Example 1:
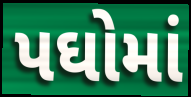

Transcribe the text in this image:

પઘોમાં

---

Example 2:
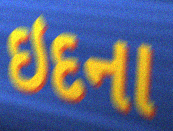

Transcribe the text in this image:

ઇદના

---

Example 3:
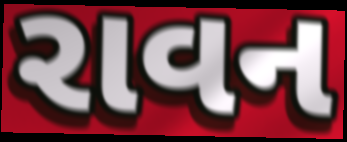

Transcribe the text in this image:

રાવન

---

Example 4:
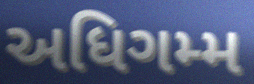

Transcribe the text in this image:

અધિગમ્મ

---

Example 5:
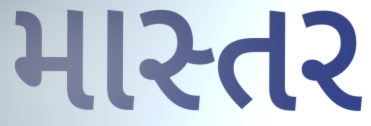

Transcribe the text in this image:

માસ્તર